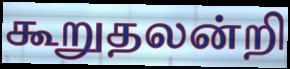
கூறுதலன்றி